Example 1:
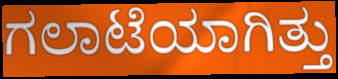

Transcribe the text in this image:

ಗಲಾಟೆಯಾಗಿತ್ತು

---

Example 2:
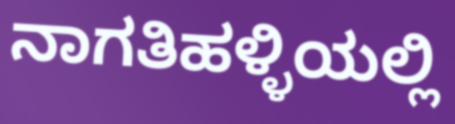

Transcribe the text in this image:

ನಾಗತಿಹಳ್ಳಿಯಲ್ಲಿ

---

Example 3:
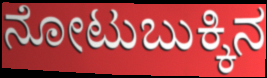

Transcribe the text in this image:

ನೋಟುಬುಕ್ಕಿನ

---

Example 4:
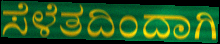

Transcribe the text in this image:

ಸೆಳೆತದಿಂದಾಗಿ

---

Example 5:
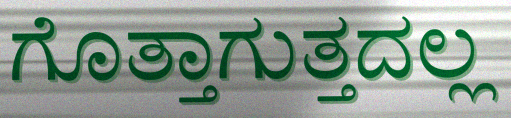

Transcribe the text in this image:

ಗೊತ್ತಾಗುತ್ತದಲ್ಲ